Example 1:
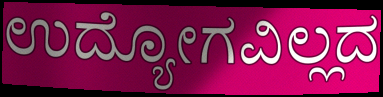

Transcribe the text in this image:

ಉದ್ಯೋಗವಿಲ್ಲದ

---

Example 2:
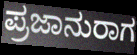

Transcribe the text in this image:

ಪ್ರಜಾನುರಾಗ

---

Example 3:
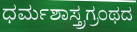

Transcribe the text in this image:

ಧರ್ಮಶಾಸ್ತ್ರಗ್ರಂಥದ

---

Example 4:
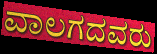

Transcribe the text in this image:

ವಾಲಗದವರು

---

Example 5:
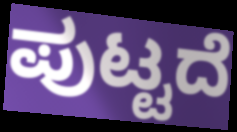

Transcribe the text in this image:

ಪುಟ್ಟದೆ